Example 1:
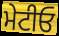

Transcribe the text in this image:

ਮੇਟੀਓ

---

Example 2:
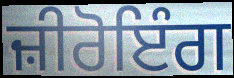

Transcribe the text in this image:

ਜ਼ੀਰੋਇੰਗ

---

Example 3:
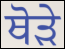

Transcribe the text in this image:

ਥੋਡ਼ੇ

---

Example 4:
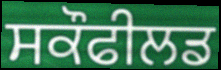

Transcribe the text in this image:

ਸਕੌਫੀਲਡ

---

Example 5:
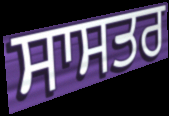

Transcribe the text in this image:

ਸਾਸਤਰ